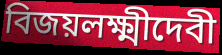
বিজয়লক্ষ্মীদেবী